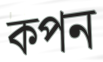
কপন